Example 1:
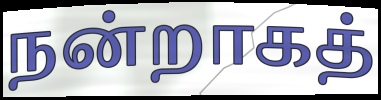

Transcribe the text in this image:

நன்றாகத்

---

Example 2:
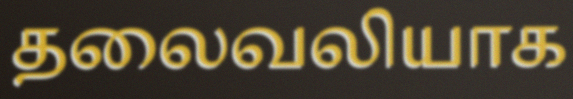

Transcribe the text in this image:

தலைவலியாக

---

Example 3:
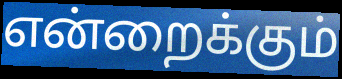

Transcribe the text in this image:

என்றைக்கும்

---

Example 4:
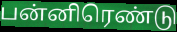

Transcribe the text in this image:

பன்னிரெண்டு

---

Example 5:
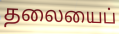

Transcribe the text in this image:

தலையைப்